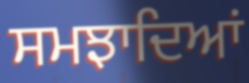
ਸਮਝਾਦਿਆਂ